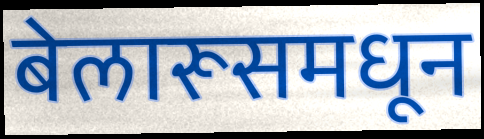
बेलारूसमधून